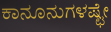
ಕಾನೂನುಗಳಷ್ಟೇ